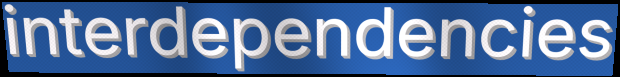
interdependencies